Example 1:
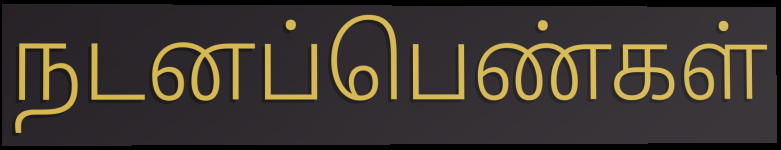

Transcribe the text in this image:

நடனப்பெண்கள்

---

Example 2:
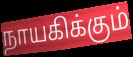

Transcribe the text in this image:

நாயகிக்கும்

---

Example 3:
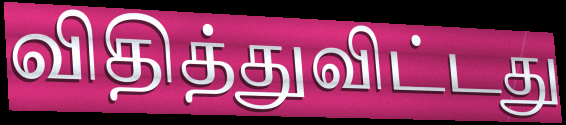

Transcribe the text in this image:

விதித்துவிட்டது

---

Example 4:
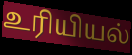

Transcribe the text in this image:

உரியியல்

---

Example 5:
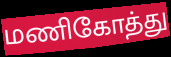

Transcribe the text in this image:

மணிகோத்து